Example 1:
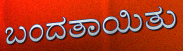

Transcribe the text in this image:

ಬಂದತಾಯಿತು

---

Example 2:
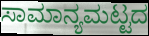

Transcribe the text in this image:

ಸಾಮಾನ್ಯಮಟ್ಟದ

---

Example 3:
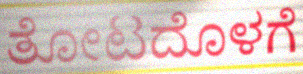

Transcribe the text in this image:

ತೋಟದೊಳಗೆ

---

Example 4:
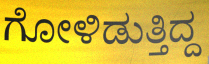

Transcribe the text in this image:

ಗೋಳಿಡುತ್ತಿದ್ದ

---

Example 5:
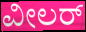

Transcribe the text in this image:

ವೀಲರ್